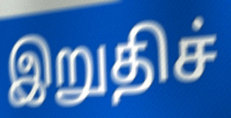
இறுதிச்